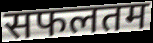
सफलतम